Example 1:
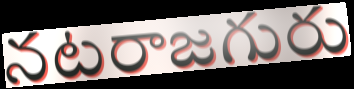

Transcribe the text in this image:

నటరాజగురు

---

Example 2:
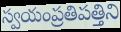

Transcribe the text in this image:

స్వయంప్రతిపత్తిని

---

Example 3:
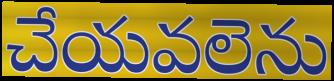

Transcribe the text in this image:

చేయవలెను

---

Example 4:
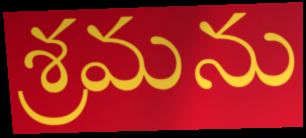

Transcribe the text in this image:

శ్రమను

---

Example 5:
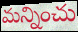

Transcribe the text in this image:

మన్నించు